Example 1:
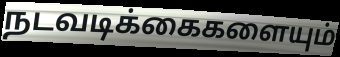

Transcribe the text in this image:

நடவடிக்கைகளையும்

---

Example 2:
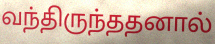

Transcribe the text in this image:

வந்திருந்ததனால்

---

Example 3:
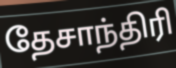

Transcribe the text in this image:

தேசாந்திரி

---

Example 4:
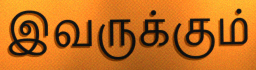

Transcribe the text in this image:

இவருக்கும்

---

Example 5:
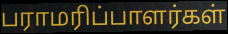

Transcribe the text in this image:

பராமரிப்பாளர்கள்